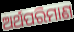
ଅର୍ଥପରିମାଣ